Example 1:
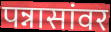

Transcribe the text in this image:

पन्नासांवर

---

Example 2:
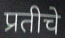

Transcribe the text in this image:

प्रतीचे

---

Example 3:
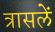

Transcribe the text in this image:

त्रासलें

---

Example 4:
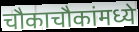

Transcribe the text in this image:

चौकाचौकांमध्ये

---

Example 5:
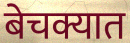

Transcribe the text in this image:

बेचक्यात